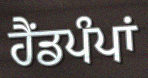
ਹੈਂਡਪੰਪਾਂ